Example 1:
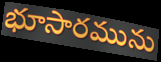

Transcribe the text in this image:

భూసారమును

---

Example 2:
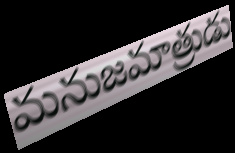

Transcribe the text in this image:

మనుజమాత్రుడు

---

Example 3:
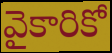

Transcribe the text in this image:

వైకారికో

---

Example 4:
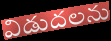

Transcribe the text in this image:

విడుదలను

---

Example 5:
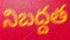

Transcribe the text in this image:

నిబద్దత